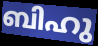
ബിഹു